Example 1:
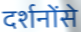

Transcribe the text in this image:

दर्शनोंसे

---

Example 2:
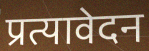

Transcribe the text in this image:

प्रत्यावेदन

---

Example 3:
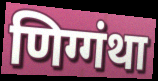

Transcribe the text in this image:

णिग्गंथा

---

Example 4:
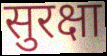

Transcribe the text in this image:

सुरक्षा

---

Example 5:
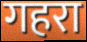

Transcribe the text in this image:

गहरा